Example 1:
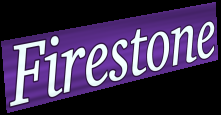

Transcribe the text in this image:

Firestone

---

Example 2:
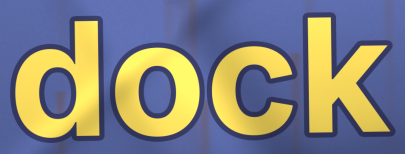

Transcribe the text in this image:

dock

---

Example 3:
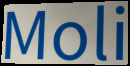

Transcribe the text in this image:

Moli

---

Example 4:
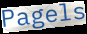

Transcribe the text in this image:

Pagels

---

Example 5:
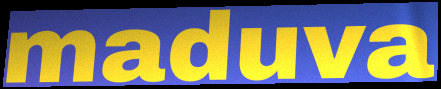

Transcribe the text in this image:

maduva